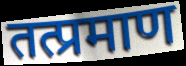
तत्प्रमाण